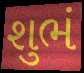
શુભં